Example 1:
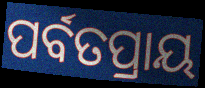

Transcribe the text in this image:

ପର୍ବତପ୍ରାୟ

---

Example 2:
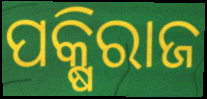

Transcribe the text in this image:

ପକ୍ଷିରାଜ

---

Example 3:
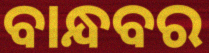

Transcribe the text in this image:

ବାନ୍ଧବର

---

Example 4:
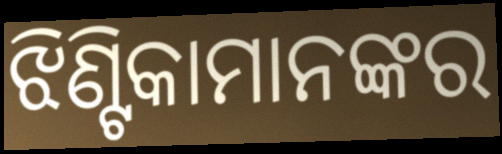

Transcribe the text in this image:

ଝିଣ୍ଟିକାମାନଙ୍କର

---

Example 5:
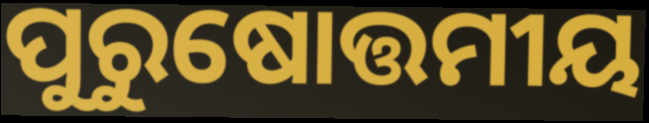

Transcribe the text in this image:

ପୁରୁଷୋତ୍ତମୀୟ